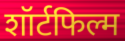
शॉर्टफिल्म